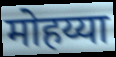
मोहय्या